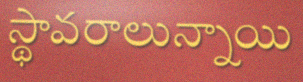
స్థావరాలున్నాయి